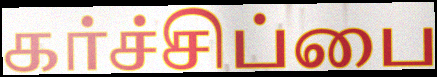
கர்ச்சிப்பை